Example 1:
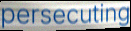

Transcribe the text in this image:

persecuting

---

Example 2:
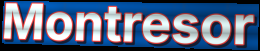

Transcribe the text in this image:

Montresor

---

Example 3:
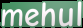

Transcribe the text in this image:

mehul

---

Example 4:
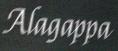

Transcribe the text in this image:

Alagappa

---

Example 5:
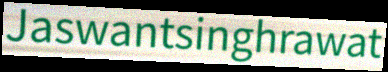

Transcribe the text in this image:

Jaswantsinghrawat